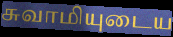
சுவாமியுடைய